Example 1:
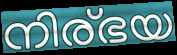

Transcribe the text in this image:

നിര്ഭയ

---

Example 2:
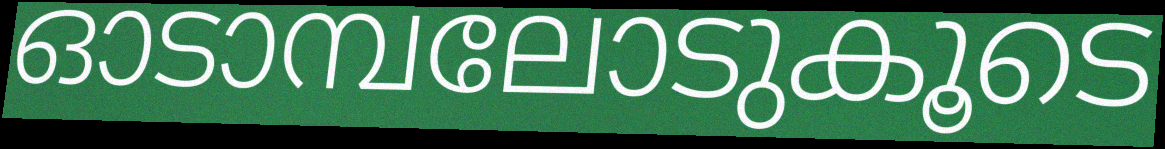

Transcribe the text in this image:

ഓടാമ്പലോടുകൂടെ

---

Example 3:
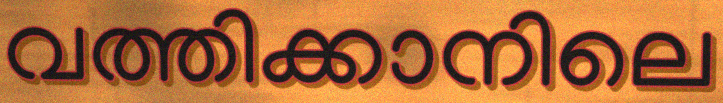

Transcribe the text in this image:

വത്തിക്കാനിലെ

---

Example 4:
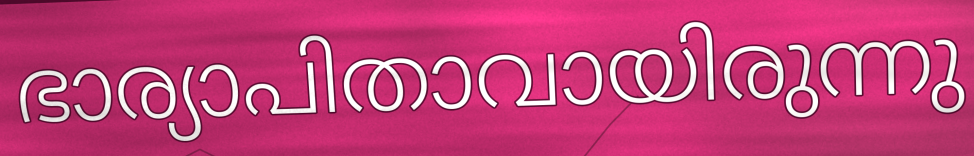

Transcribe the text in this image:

ഭാര്യാപിതാവായിരുന്നു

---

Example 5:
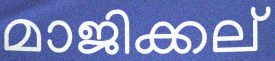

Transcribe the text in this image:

മാജിക്കല്